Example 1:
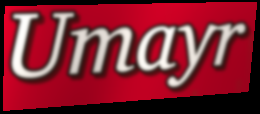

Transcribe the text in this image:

Umayr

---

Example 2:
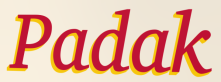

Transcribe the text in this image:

Padak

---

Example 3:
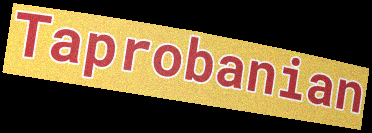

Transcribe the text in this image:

Taprobanian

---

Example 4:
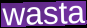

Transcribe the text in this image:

wasta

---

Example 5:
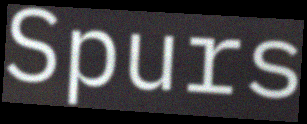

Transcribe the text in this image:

Spurs